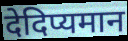
देदिप्यमान